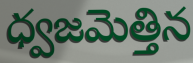
ధ్వజమెత్తిన